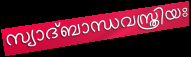
സ്യാദ്ബാന്ധവസ്ത്രിയഃ